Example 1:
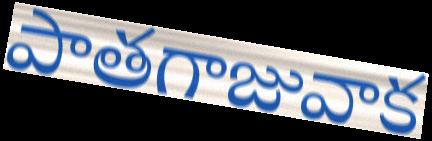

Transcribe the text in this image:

పాతగాజువాక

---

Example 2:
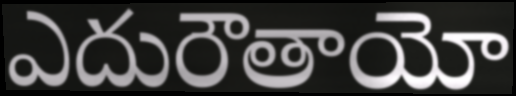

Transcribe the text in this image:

ఎదురౌతాయో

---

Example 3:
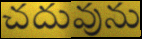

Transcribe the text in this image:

చదువును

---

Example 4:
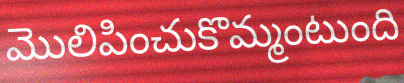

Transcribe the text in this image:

మొలిపించుకొమ్మంటుంది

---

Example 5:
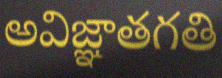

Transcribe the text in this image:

అవిజ్ఞాతగతి